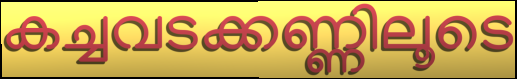
കച്ചവടക്കണ്ണിലൂടെ